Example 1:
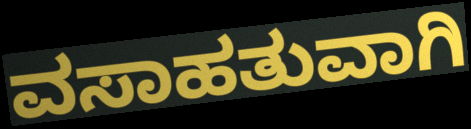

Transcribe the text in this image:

ವಸಾಹತುವಾಗಿ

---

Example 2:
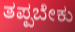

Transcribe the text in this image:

ತಪ್ಪಬೇಕು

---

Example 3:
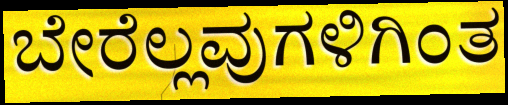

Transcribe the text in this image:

ಬೇರೆಲ್ಲವುಗಳಿಗಿಂತ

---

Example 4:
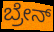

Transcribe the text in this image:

ಬ್ರೇನ್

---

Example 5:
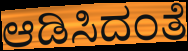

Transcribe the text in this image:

ಆಡಿಸಿದಂತೆ